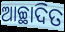
ଆଚ୍ଛାଦିତ